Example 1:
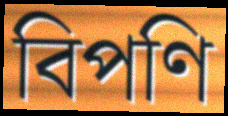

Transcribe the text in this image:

বিপণি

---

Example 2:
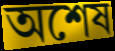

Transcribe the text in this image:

অশেষ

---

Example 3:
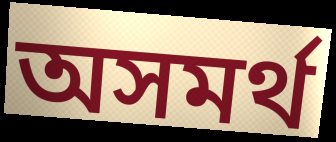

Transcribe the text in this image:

অসমৰ্থ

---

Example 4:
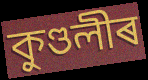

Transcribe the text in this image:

কুণ্ডলীৰ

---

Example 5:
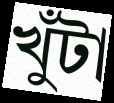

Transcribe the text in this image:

খুঁটা